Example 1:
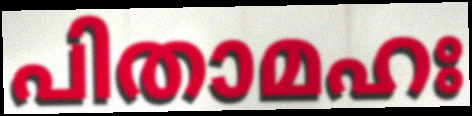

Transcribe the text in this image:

പിതാമഹഃ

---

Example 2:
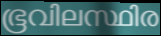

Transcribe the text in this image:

ഭൂവിലസ്ഥിര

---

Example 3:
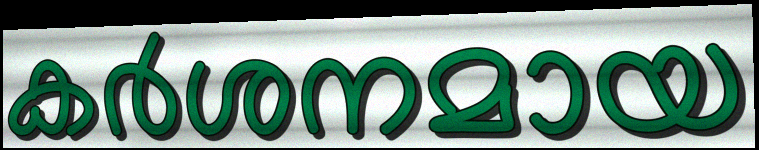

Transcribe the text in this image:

കർശനമായ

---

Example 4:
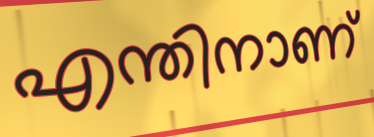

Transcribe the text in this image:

എന്തിനാണ്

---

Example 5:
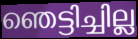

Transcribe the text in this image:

ഞെട്ടിച്ചില്ല